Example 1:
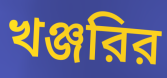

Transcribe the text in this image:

খঞ্জরির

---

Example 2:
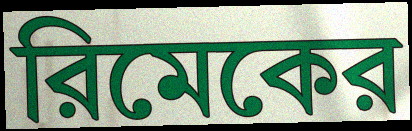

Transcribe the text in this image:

রিমেকের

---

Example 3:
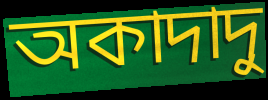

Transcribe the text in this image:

অকাদাদু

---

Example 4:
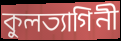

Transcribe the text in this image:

কুলত্যাগিনী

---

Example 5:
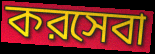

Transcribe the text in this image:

করসেবা